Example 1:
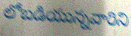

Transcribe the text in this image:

లోబడియున్నవారిని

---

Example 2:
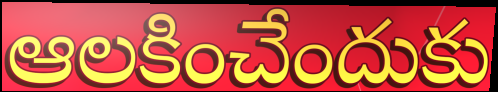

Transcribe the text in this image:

ఆలకించేందుకు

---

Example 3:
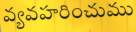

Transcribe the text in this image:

వ్యవహరించుము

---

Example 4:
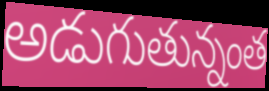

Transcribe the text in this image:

అడుగుతున్నంత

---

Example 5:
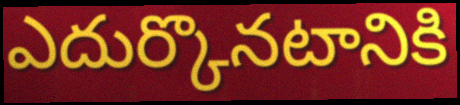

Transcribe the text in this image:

ఎదుర్కొనటానికి